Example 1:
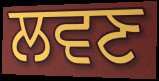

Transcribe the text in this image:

ਲਵਣ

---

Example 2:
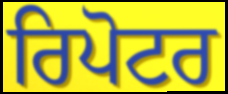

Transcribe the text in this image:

ਰਿਪੋਟਰ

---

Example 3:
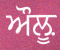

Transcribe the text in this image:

ਔਲ਼ੂ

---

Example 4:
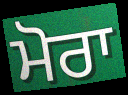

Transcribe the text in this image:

ਮੋਰਾ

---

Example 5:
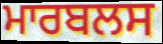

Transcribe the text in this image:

ਮਾਰਬਲਸ